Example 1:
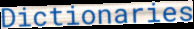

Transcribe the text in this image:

Dictionaries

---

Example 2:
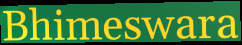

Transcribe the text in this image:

Bhimeswara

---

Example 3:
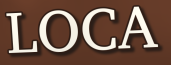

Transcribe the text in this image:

LOCA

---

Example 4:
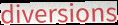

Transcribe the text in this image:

diversions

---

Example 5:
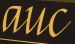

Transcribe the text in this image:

auc